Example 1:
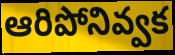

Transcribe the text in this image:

ఆరిపోనివ్వక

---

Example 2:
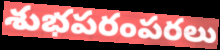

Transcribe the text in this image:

శుభపరంపరలు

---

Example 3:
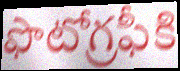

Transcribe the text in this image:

ఫొటోగ్రఫీకి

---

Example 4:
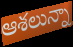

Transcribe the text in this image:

ఆశలున్నా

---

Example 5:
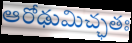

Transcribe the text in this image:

ఆరోఢుమిచ్ఛతః